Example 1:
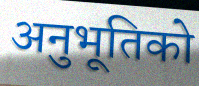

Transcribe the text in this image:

अनुभूतिको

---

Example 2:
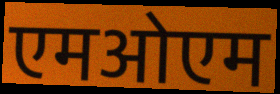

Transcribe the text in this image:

एमओएम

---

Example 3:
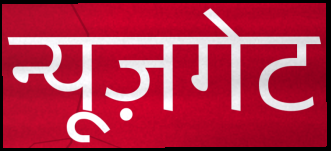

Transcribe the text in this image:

न्यूज़गेट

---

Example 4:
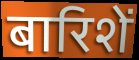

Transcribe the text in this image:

बारिशें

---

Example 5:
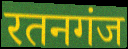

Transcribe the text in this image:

रतनगंज